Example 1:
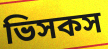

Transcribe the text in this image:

ভিসকস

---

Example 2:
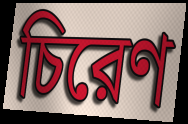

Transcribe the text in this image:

চিরেণ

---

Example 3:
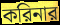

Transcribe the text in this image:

করিনার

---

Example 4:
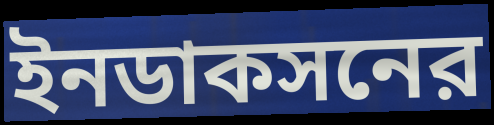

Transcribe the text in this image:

ইনডাকসনের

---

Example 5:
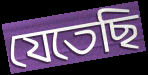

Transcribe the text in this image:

যেতেছি